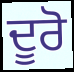
ਦੂਰੋ